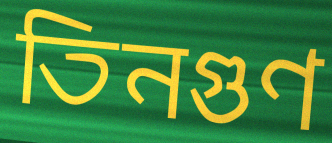
তিনগুণ